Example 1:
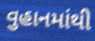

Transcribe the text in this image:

વુહાનમાંથી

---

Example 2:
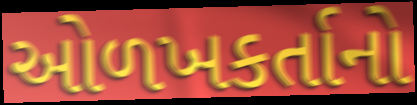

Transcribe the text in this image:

ઓળખકર્તાનો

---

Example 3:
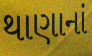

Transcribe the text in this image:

થાણાનાં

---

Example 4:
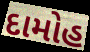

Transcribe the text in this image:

દામોહ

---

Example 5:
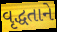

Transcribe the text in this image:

વૃદ્ધતાને